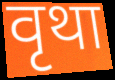
वृथा